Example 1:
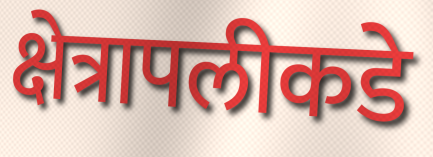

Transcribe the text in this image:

क्षेत्रापलीकडे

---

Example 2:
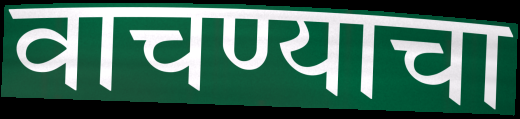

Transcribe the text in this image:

वाचण्याचा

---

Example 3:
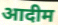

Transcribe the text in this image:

आदीम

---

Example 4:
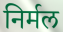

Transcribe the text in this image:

निर्मल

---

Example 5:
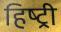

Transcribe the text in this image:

हिष्ट्री